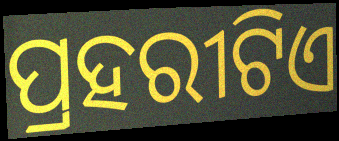
ପ୍ରହରୀଟିଏ